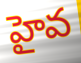
హైవ